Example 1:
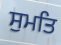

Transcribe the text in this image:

ਸੁਮਤਿ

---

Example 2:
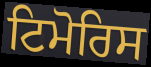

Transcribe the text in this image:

ਟਿਮੋਰਿਸ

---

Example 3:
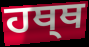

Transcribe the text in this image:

ਹਥ੍ਥ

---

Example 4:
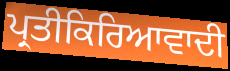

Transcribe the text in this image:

ਪ੍ਰਤੀਕਿਰਿਆਵਾਦੀ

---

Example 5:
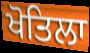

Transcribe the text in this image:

ਖੋਤਿਲਾ